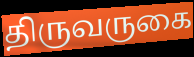
திருவருகை